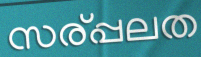
സര്പ്പലത